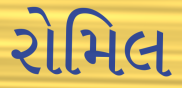
રોમિલ